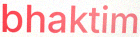
bhaktim